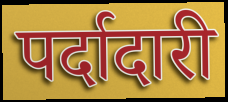
पर्दादारी